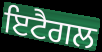
ਇਟੈਗਲ